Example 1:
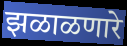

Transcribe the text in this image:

झळाळणारे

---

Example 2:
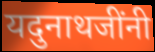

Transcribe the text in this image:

यदुनाथजींनी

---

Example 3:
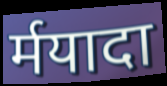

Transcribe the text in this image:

र्मयादा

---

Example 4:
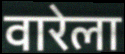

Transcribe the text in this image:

वारेला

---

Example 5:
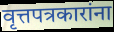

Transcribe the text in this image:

वृत्तपत्रकारांना